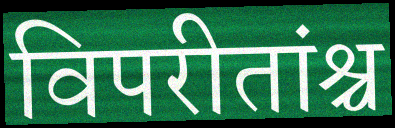
विपरीतांश्च